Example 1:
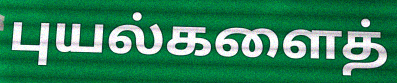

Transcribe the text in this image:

புயல்களைத்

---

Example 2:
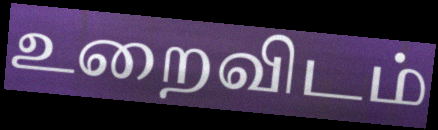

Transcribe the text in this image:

உறைவிடம்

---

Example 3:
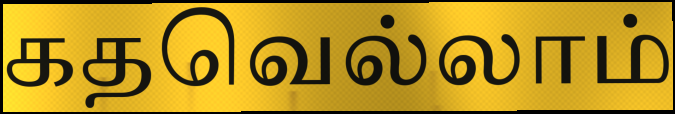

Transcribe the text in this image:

கதவெல்லாம்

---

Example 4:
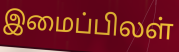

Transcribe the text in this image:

இமைப்பிலள்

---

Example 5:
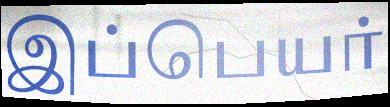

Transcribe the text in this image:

இப்பெயர்